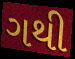
ગથી